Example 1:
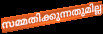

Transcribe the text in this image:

സമ്മതിക്കുന്നതുമില്ല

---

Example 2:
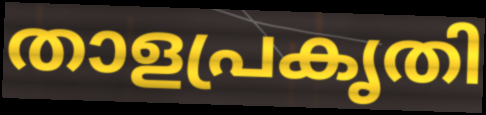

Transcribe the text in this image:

താളപ്രകൃതി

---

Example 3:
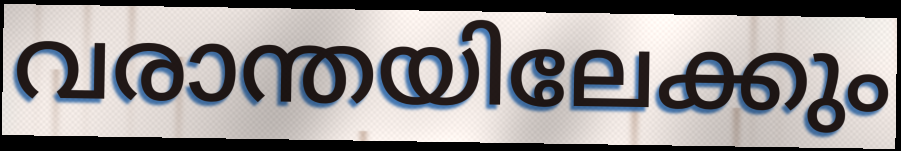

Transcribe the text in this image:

വരാന്തയിലേക്കും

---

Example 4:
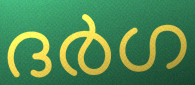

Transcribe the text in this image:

ദർഗ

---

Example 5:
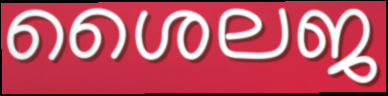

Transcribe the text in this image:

ശൈലജ